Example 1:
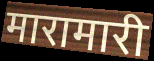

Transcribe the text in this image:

मारामारी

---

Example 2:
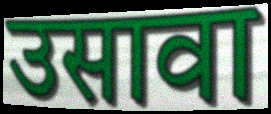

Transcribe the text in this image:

उसावा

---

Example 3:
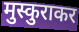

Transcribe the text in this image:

मुस्कुराकर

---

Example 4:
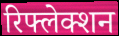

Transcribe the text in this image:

रिफ्लेक्शन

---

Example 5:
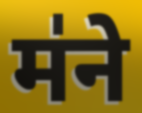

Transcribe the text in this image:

म॑ने